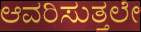
ಆವರಿಸುತ್ತಲೇ